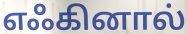
எஃகினால்